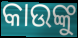
କାଉଙ୍କୁ